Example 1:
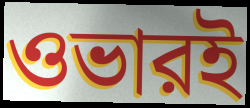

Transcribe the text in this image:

ওভারই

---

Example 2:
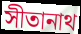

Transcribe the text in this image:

সীতানাথ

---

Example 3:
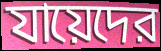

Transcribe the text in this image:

যায়েদের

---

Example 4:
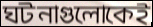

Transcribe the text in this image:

ঘটনাগুলোকেই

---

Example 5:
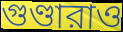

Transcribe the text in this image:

গুণ্ডারাও